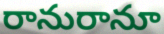
రానురానూ